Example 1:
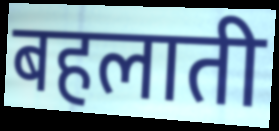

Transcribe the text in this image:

बहलाती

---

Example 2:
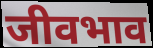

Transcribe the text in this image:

जीवभाव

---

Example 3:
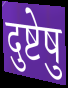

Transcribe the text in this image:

दुष्टेषु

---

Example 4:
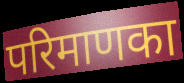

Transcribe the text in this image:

परिमाणका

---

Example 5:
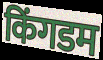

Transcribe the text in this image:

किंगडम